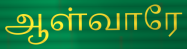
ஆள்வாரே